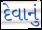
દેવાનું